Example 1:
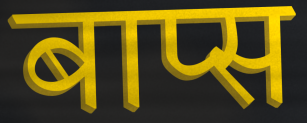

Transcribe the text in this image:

बाप्स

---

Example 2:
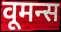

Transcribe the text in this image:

वूमन्स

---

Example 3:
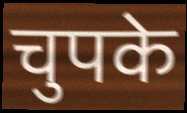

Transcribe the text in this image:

चुपके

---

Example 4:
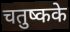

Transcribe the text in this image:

चतुष्कके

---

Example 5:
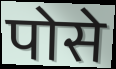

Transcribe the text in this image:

पोसे